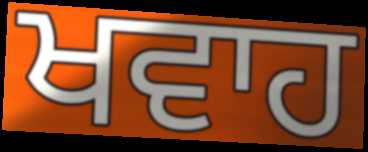
ਖਵਾਹ